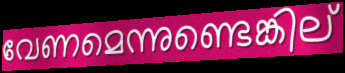
വേണമെന്നുണ്ടെങ്കില്